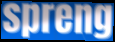
spreng